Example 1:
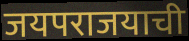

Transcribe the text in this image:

जयपराजयाची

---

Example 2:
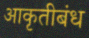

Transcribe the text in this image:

आकृतीबंध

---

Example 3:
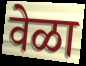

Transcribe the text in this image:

वेळा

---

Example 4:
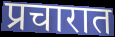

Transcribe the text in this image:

प्रचारात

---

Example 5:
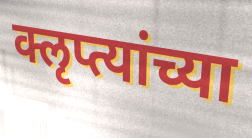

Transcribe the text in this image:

क्लृप्त्यांच्या